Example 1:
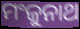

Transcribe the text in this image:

ମଂଜୁନାଥ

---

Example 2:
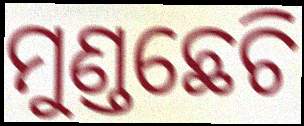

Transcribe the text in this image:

ମୁଣ୍ଡଛେଚି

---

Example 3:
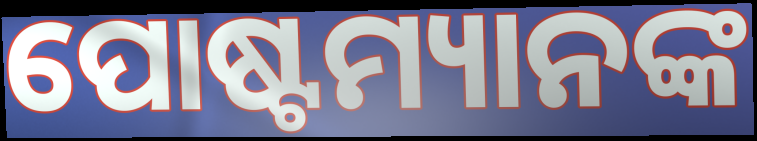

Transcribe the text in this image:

ପୋଷ୍ଟମ୍ୟାନଙ୍କ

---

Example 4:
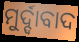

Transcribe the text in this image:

ମୁର୍ଦ୍ଦାବାଦ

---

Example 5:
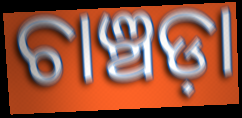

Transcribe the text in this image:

ଚାଞ୍ଚଡ଼ା